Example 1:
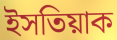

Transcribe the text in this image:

ইসতিয়াক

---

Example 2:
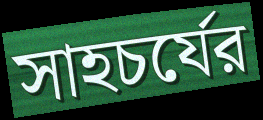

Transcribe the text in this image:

সাহচর্যের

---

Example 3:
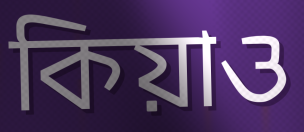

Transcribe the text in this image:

কিয়াও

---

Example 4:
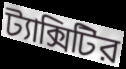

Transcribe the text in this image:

ট্যাক্সিটির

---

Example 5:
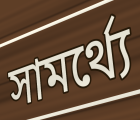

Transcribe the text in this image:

সামর্থ্যে